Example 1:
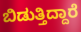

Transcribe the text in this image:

ಬಿಡುತ್ತಿದ್ದಾರೆ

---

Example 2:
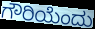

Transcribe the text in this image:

ಗೌರಿಯೆಂದು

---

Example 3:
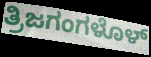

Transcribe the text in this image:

ತ್ರಿಜಗಂಗಳೊಳ್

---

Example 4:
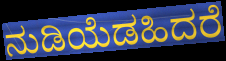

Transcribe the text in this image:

ನುಡಿಯೆಡಹಿದರೆ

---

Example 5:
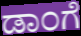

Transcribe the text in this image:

ಡಾಂಗೆ